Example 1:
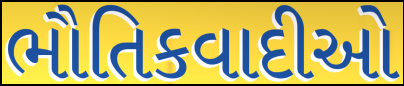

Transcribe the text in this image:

ભૌતિકવાદીઓ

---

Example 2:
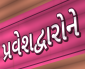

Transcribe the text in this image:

પ્રવેશદ્વારોને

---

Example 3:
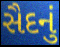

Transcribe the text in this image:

સૈદનું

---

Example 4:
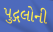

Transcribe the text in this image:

પુદ્ગલોની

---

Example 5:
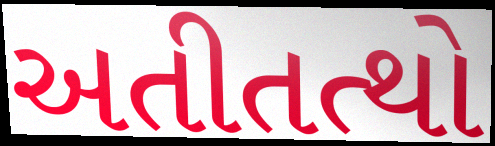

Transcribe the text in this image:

અતીતત્થો